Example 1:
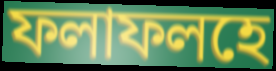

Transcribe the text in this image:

ফলাফলহে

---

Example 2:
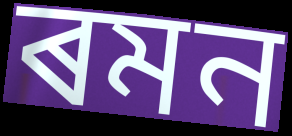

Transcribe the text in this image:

ৰমন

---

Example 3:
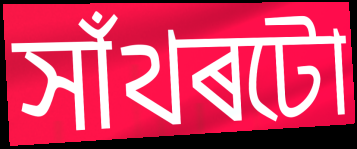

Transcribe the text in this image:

সাঁথৰটো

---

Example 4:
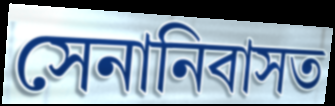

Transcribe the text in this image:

সেনানিবাসত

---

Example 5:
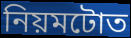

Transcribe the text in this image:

নিয়মটোত